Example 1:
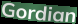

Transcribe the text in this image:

Gordian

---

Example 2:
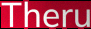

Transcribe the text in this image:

Theru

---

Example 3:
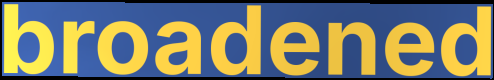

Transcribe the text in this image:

broadened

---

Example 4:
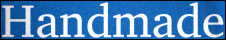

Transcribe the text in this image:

Handmade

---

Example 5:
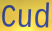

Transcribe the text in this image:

Cud